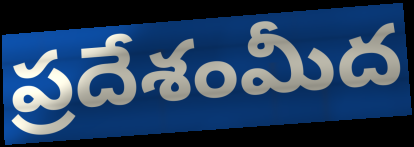
ప్రదేశంమీద